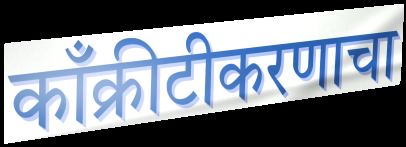
काँक्रीटीकरणाचा